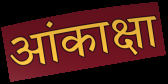
आंकाक्षा